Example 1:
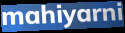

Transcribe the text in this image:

mahiyarni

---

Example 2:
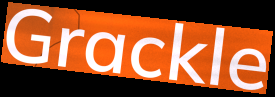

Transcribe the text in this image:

Grackle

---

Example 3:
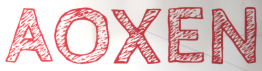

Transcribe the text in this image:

AOXEN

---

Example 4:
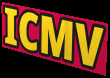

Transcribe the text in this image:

ICMV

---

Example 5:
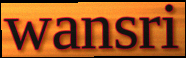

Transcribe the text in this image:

wansri